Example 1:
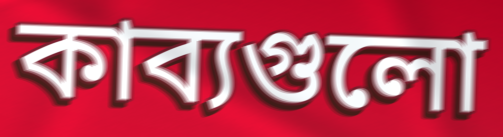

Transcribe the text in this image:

কাব্যগুলো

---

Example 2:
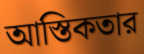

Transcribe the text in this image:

আস্তিকতার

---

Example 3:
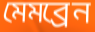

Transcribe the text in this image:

মেমব্রেন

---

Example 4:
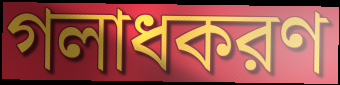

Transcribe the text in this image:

গলাধকরণ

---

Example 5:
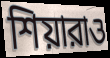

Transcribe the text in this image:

শিয়ারাও